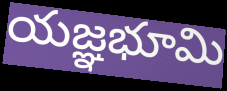
యజ్ఞభూమి